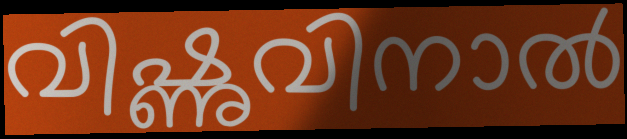
വിഷ്ണുവിനാൽ